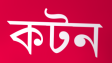
কটন